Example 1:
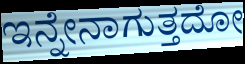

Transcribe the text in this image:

ಇನ್ನೇನಾಗುತ್ತದೋ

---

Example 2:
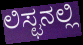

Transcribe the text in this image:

ಲಿಸ್ಟನಲ್ಲಿ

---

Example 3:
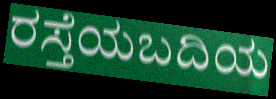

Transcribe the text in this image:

ರಸ್ತೆಯಬದಿಯ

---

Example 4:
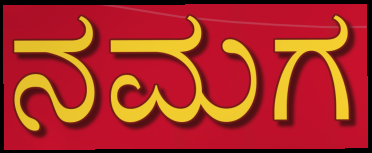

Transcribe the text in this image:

ನಮಗ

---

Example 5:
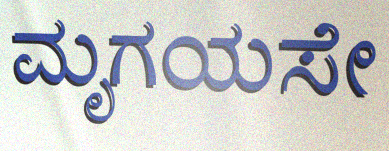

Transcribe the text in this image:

ಮೃಗಯಸೇ